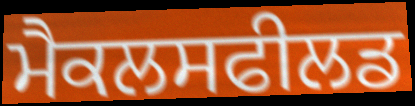
ਮੈਕਲਸਫੀਲਡ